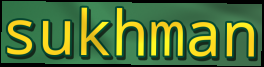
sukhman